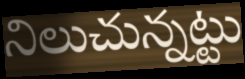
నిలుచున్నట్టు